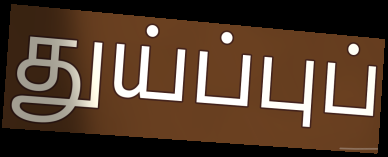
துய்ப்புப்